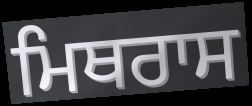
ਮਿਥਰਾਸ